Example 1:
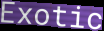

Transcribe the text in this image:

Exotic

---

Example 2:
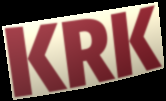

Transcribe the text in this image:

KRK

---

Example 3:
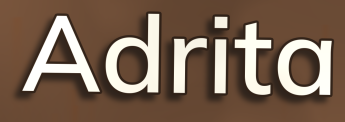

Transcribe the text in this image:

Adrita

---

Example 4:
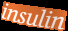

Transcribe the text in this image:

insulin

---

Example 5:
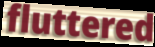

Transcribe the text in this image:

fluttered